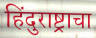
हिंदुराष्ट्राचा